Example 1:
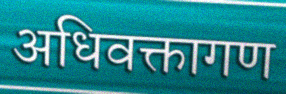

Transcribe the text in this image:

अधिवक्तागण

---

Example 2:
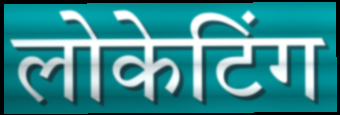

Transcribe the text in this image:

लोकेटिंग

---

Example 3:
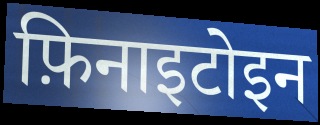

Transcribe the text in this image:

फ़िनाइटोइन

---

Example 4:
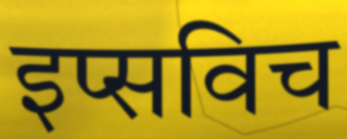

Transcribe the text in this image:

इप्सविच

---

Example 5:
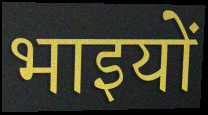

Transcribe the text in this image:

भाइयों